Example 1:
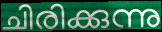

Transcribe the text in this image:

ചിരിക്കുന്നു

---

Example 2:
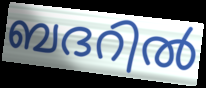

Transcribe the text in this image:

ബദറിൽ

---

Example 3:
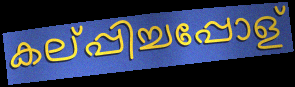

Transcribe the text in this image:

കല്പ്പിച്ചപ്പോള്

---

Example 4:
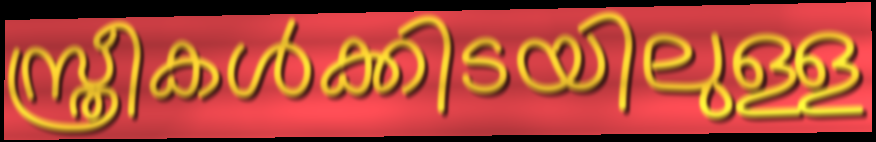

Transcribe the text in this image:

സ്ത്രീകൾക്കിടയിലുള്ള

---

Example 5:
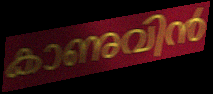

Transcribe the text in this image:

കാണുവിൻ